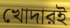
খোদারই